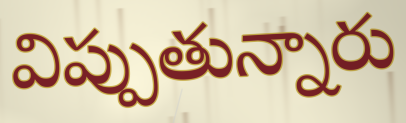
విప్పుతున్నారు